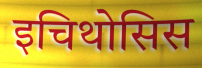
इचिथोसिस